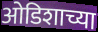
ओडिशाच्या